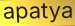
apatya